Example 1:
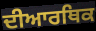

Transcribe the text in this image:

ਦੀਆਰਥਿਕ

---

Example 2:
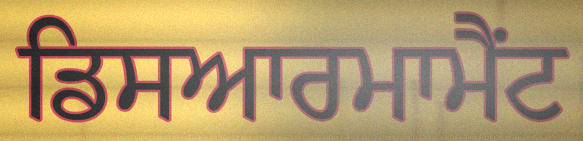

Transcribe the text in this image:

ਡਿਸਆਰਮਾਮੈਂਟ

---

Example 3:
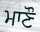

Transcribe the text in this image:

ਮਾਣੌ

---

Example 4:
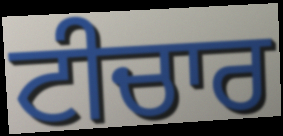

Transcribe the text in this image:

ਟੀਚਾਰ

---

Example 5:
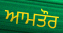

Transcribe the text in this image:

ਆਮਤੌਰ